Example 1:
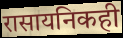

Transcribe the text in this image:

रासायनिकही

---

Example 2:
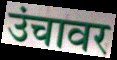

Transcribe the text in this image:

उंचावर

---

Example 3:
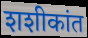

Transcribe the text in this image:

शशीकांत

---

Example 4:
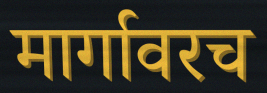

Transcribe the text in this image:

मार्गावरच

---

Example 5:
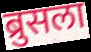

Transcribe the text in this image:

ब्रुसला